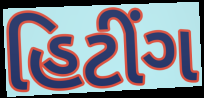
હિટીંગ